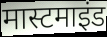
मास्टमाइंड